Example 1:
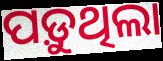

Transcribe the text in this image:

ପଡ଼ୁଥିଲା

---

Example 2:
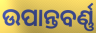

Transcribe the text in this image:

ଉପାନ୍ତବର୍ଣ୍ଣ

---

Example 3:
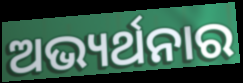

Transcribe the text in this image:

ଅଭ୍ୟର୍ଥନାର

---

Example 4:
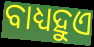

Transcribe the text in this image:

ବାଧ୍ୟହୁଏ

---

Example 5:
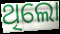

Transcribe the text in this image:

ଥିଲୋ